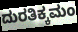
ದುರತಿಕ್ಕಮಂ